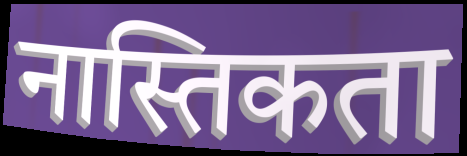
नास्तिकता